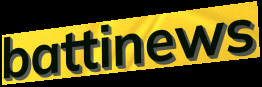
battinews